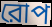
রোপ